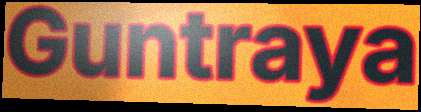
Guntraya